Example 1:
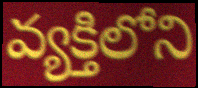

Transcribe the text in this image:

వ్యక్తిలోని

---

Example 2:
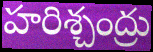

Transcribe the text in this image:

హరిశ్చంద్రు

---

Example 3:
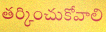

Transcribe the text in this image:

తర్కించుకోవాలి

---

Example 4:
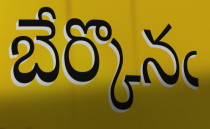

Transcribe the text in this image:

బేర్కొనఁ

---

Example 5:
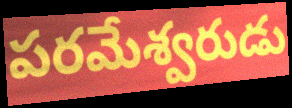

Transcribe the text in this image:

పరమేశ్వరుడు